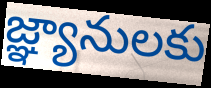
జ్ఞ్యానులకు